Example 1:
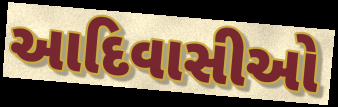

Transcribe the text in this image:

આદિવાસીઓ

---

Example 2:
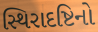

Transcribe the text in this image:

સ્થિરાદષ્ટિનો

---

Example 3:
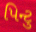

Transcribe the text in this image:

પિન્ટુ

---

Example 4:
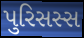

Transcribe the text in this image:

પુરિસસ્સ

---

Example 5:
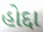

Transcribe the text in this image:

હોદ્દા